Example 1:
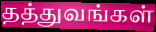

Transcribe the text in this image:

தத்துவங்கள்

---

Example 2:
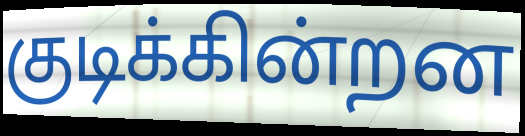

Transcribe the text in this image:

குடிக்கின்றன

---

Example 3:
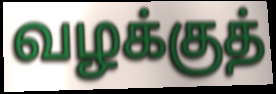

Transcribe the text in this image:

வழக்குத்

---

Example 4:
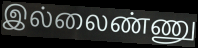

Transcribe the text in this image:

இல்லைண்ணு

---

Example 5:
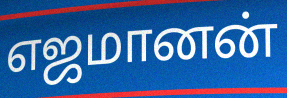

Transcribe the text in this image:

எஜமானன்